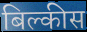
बिल्कीस